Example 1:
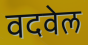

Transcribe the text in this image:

वदवेल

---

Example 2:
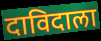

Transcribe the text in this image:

दाविदाला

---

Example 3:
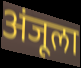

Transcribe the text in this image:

अंजूला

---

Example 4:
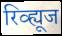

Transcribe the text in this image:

रिव्ह्यूज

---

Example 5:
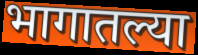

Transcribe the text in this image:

भागातल्या